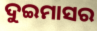
ଦୁଇମାସର